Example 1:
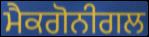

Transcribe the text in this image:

ਮੈਕਗੋਨੀਗਲ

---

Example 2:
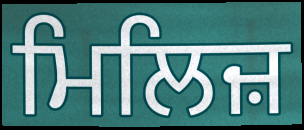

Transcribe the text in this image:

ਮਿਲਿਜ਼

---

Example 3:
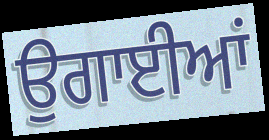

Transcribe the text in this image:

ਉਗਾਈਆਂ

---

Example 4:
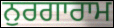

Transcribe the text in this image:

ਨੁਰਗਾਰਾਮ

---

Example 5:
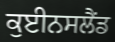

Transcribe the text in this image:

ਕੁਈਨਸਲੈਂਡ